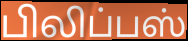
பிலிப்பஸ்